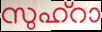
സുഹ്റാ